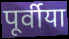
पूर्वीया